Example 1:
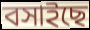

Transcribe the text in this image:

বসাইছে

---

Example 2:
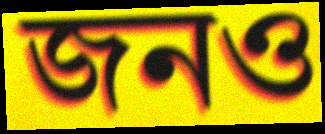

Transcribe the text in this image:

জনও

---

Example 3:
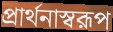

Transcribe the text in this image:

প্রার্থনাস্বরূপ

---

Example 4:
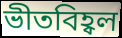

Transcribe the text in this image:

ভীতবিহ্বল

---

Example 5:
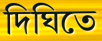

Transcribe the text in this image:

দিঘিতে